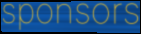
sponsors